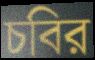
চবির